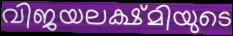
വിജയലക്ഷ്മിയുടെ